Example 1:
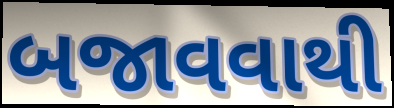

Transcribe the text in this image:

બજાવવાથી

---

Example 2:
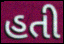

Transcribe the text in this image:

હતી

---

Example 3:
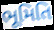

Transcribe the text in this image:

ભૂમિતિ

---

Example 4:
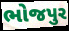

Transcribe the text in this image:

ભોજપુર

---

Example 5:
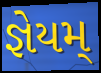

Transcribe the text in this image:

જ્ઞેયમ્